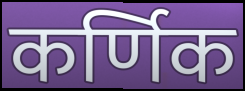
कर्णिक